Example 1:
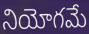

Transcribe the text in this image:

నియోగమే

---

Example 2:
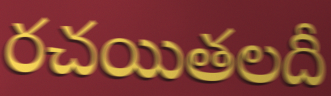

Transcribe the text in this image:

రచయితలదీ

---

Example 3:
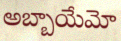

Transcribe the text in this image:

అబ్బాయేమో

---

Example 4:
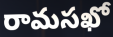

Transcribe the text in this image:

రామసఖో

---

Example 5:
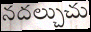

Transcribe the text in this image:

నదల్చుచు